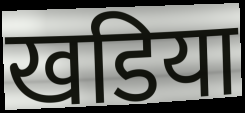
खडिया